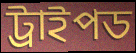
ট্রাইপড